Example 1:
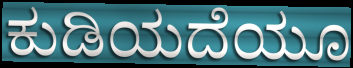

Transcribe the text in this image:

ಕುಡಿಯದೆಯೂ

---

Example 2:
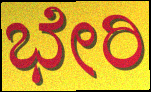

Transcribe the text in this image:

ಭೇರಿ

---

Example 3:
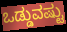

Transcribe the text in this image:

ಒಡ್ಡುವಷ್ಟು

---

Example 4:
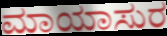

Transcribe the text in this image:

ಮಾಯಾಸುರ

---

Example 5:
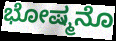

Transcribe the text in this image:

ಭೋಷ್ಮನೊ